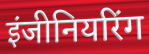
इंजीनियरिंग